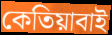
কেতিয়াবাই